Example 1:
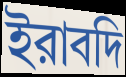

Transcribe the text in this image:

ইরাবদি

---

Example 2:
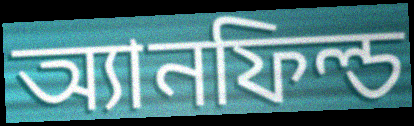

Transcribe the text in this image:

অ্যানফিল্ড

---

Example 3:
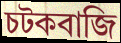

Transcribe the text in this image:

চটকবাজি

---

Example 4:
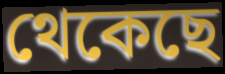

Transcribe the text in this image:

থেকেছে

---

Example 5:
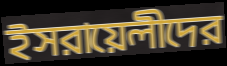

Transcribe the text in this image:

ইসরায়েলীদের